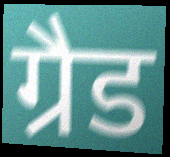
ग्रैड